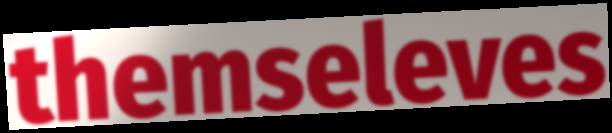
themseleves